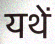
यथें